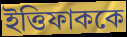
ইত্তিফাককে